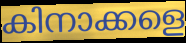
കിനാക്കളെ